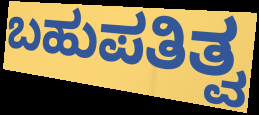
ಬಹುಪತಿತ್ವ